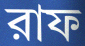
রাফ